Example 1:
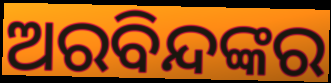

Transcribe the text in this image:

ଅରବିନ୍ଦଙ୍କର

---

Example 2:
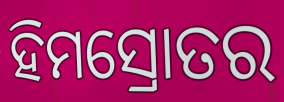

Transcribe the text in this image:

ହିମସ୍ରୋତର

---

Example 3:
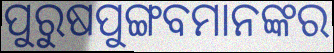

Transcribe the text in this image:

ପୁରୁଷପୁଙ୍ଗବମାନଙ୍କର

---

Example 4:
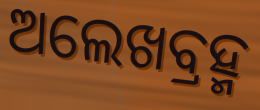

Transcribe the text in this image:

ଅଲେଖବ୍ରହ୍ମ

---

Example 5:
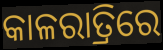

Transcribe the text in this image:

କାଳରାତ୍ରିରେ